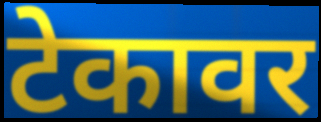
टेकावर